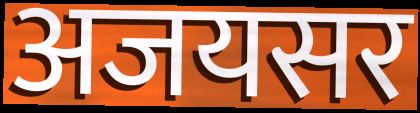
अजयसर